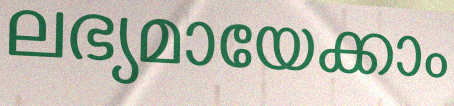
ലഭ്യമായേക്കാം